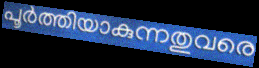
പൂർത്തിയാകുന്നതുവരെ